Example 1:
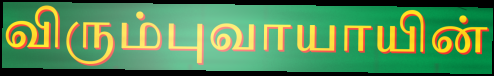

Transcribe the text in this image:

விரும்புவாயாயின்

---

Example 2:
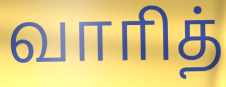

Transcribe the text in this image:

வாரித்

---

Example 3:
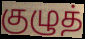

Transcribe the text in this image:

குழுத்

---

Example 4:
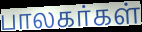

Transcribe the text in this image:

பாலகர்கள்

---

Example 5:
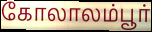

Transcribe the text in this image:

கோலாலம்பூர்